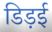
डिड़ई